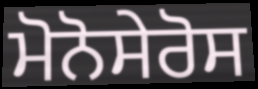
ਮੋਨੋਸੇਰੋਸ